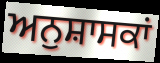
ਅਨੁਸ਼ਾਸਕਾਂ